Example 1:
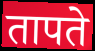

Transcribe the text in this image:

तापते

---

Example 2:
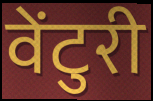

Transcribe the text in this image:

वेंटुरी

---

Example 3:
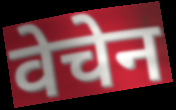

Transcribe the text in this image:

वेचेन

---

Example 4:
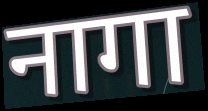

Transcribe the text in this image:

नागा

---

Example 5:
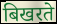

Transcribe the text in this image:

बिखरते